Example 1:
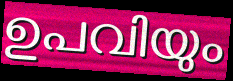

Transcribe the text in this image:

ഉപവിയും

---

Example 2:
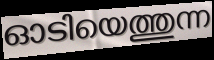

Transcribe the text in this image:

ഓടിയെത്തുന്ന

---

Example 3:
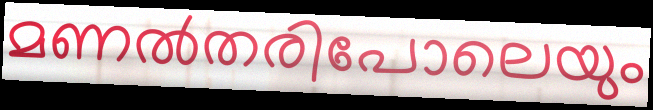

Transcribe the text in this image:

മണൽതരിപോലെയും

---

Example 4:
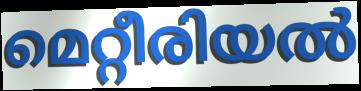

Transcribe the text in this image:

മെറ്റീരിയൽ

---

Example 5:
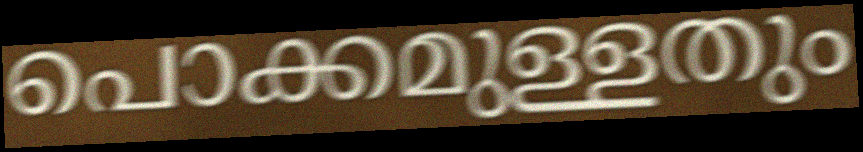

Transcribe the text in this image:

പൊക്കമുള്ളതും